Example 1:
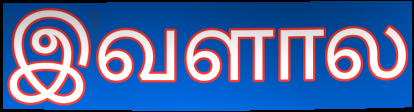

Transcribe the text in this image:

இவளால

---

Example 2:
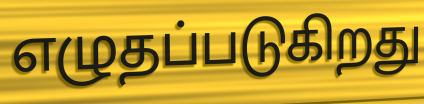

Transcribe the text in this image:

எழுதப்படுகிறது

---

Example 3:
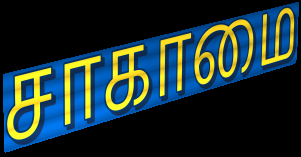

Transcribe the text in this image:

சாகாமை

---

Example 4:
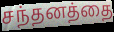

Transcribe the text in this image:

சந்தனத்தை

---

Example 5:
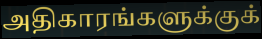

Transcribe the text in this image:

அதிகாரங்களுக்குக்